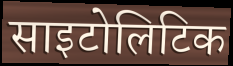
साइटोलिटिक